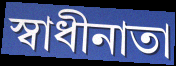
স্বাধীনাতা